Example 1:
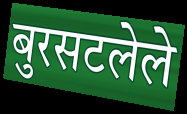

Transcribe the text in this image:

बुरसटलेले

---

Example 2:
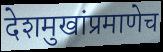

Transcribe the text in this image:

देशमुखांप्रमाणेच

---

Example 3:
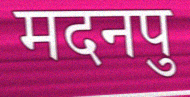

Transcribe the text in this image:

मदनपु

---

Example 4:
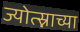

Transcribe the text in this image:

ज्योत्स्नाच्या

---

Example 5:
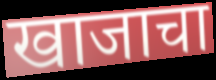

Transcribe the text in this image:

खाजाचा